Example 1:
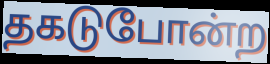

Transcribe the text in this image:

தகடுபோன்ற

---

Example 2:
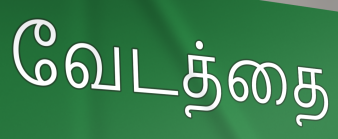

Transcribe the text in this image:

வேடத்தை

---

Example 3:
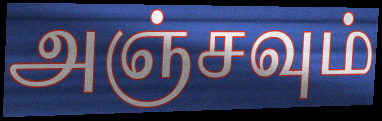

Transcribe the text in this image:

அஞ்சவும்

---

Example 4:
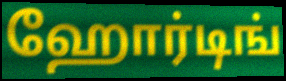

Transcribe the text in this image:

ஹோர்டிங்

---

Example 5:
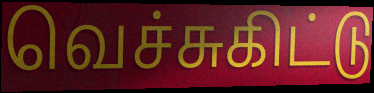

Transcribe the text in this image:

வெச்சுகிட்டு